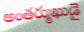
అంతర్ముఖుడై